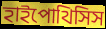
হাইপোথিসিস